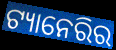
ଟ୍ୟାନେରିର